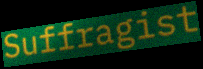
Suffragist